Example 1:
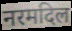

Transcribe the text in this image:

नरमदिल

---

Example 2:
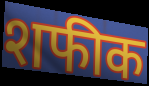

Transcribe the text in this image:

शफीक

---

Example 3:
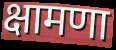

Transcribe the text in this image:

क्षामणा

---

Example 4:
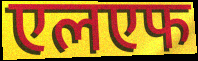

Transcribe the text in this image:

एलएफ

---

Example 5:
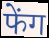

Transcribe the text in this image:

फेंग